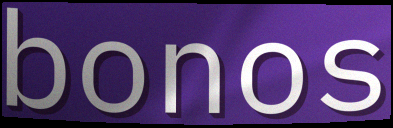
bonos